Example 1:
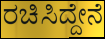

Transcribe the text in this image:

ರಚಿಸಿದ್ದೇನೆ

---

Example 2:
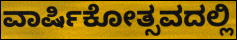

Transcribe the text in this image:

ವಾರ್ಷಿಕೋತ್ಸವದಲ್ಲಿ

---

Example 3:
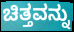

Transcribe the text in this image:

ಚಿತ್ತವನ್ನು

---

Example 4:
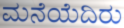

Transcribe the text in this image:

ಮನೆಯೆದಿರು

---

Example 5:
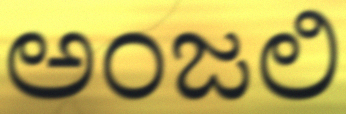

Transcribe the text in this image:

ಅಂಜಲಿ